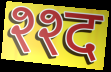
श्श्द